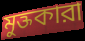
মুক্তকারা